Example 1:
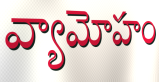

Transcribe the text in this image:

వ్యామోహం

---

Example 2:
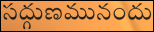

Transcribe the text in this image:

సద్గుణమునందు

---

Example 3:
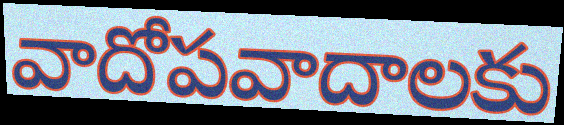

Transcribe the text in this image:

వాదోపవాదాలకు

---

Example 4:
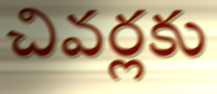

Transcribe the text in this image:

చివర్లకు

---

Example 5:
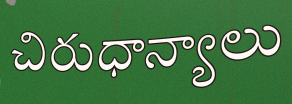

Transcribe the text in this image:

చిరుధాన్యాలు